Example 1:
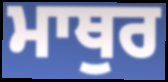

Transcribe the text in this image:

ਮਾਥੁਰ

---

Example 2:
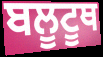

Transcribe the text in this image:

ਬਲੂਟੂਥ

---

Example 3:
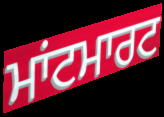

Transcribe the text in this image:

ਮਾਂਟਮਾਰਟ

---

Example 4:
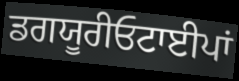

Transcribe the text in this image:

ਡਗਯੂਰੀਓਟਾਈਪਾਂ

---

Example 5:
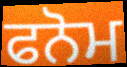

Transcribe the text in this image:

ਫਨੋਮ